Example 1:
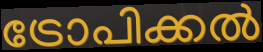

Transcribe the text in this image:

ട്രോപിക്കൽ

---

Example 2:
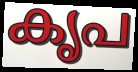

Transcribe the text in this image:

കൃപ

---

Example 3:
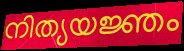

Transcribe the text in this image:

നിത്യയജ്ഞം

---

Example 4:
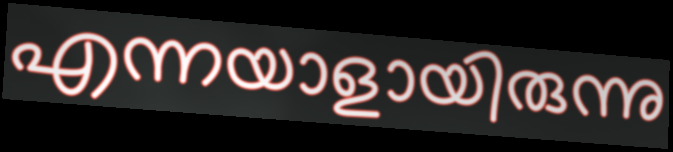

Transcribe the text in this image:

എന്നയാളായിരുന്നു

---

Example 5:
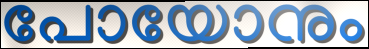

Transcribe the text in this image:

പോയോനും